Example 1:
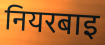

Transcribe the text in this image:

नियरबाइ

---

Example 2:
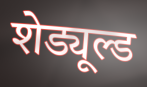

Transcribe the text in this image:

शेड्यूल्ड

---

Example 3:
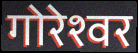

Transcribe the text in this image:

गोरेश्वर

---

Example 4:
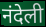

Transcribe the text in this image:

नंदेली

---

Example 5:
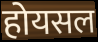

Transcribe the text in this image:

होयसल